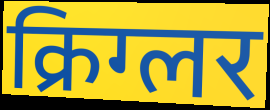
क्रिग्लर